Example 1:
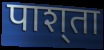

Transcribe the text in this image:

पाश्ता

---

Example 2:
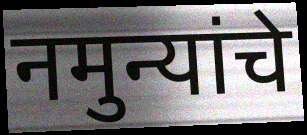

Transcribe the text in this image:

नमुन्यांचे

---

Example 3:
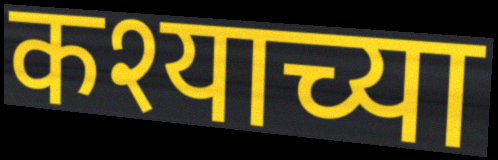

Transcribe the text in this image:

कश्याच्या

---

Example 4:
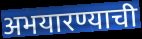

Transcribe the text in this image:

अभयारण्याची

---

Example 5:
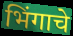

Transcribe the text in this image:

भिंगाचे